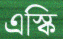
এস্কি